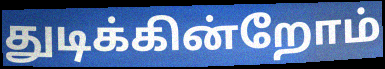
துடிக்கின்றோம்